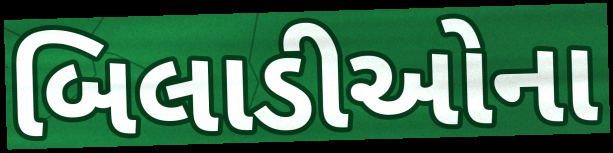
બિલાડીઓના